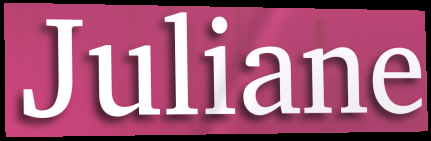
Juliane